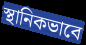
স্থানিকভাবে